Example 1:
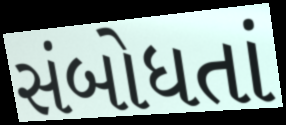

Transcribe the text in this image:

સંબોધતાં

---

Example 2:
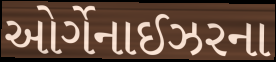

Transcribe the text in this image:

ઓર્ગેનાઈઝરના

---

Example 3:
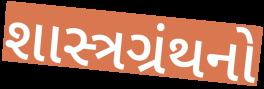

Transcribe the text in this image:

શાસ્ત્રગ્રંથનો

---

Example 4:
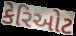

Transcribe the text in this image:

કેરિઓટ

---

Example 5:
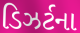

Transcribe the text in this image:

ડિઝર્ટના